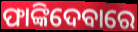
ଫାଙ୍କିଦେବାରେ